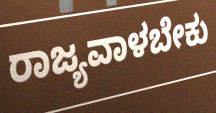
ರಾಜ್ಯವಾಳಬೇಕು